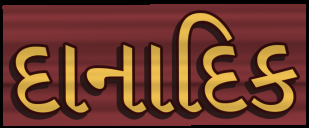
દાનાદિક